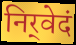
निर्वेदं